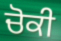
ਚੋਕੀ